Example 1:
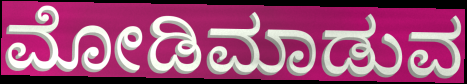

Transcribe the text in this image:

ಮೋಡಿಮಾಡುವ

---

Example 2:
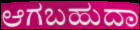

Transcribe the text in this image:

ಆಗಬಹುದಾ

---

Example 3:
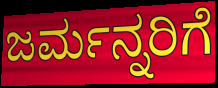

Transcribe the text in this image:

ಜರ್ಮನ್ನರಿಗೆ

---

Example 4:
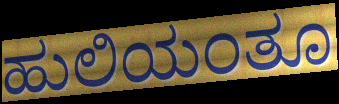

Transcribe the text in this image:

ಹುಲಿಯಂತೂ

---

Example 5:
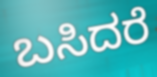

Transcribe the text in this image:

ಬಸಿದರೆ